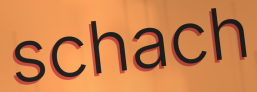
schach